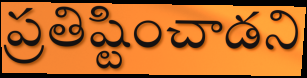
ప్రతిష్టించాడని